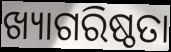
ଖ୍ୟାଗରିଷ୍ଠତା